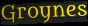
Groynes